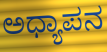
ಅಧ್ಯಾಪನ